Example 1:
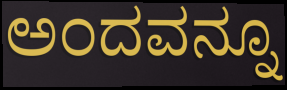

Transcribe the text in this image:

ಅಂದವನ್ನೂ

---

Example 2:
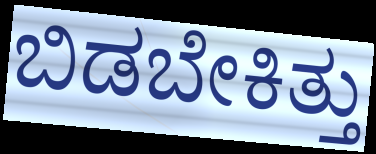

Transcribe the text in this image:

ಬಿಡಬೇಕಿತ್ತು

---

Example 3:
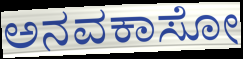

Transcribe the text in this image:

ಅನವಕಾಸೋ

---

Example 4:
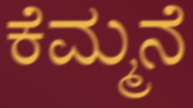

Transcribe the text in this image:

ಕೆಮ್ಮನೆ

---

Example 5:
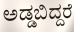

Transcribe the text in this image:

ಅಡ್ಡಬಿದ್ದರೆ